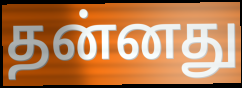
தன்னது